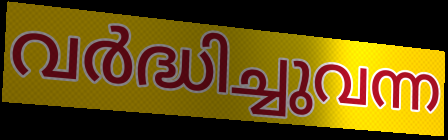
വർദ്ധിച്ചുവന്ന